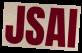
JSAI